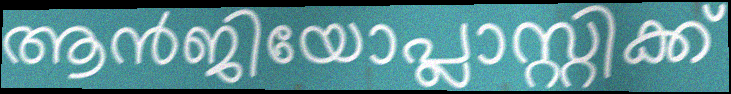
ആൻജിയോപ്ലാസ്റ്റിക്ക്